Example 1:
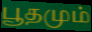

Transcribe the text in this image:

பூதமும்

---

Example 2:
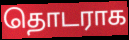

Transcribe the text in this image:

தொடராக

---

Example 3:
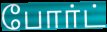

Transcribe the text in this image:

போர்ட்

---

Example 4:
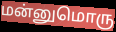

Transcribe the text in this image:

மன்னுமொரு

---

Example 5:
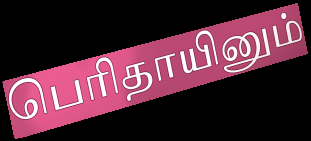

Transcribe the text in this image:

பெரிதாயினும்